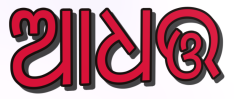
ଆଧତ୍ତ